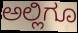
ಅಲ್ಲಿಗೂ